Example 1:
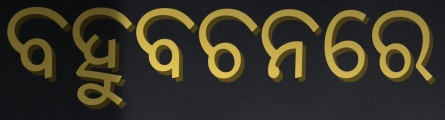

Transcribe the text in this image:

ବହୁବଚନରେ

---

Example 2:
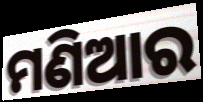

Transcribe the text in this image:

ମଣିଆର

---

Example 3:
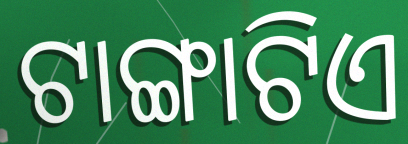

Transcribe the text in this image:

ଟାଙ୍ଗାଟିଏ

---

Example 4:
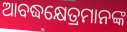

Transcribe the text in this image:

ଆବଦ୍ଧକ୍ଷେତ୍ରମାନଙ୍କ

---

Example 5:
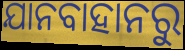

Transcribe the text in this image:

ଯାନବାହାନରୁ